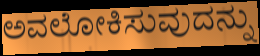
ಅವಲೋಕಿಸುವುದನ್ನು